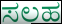
ಸಲಹ